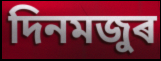
দিনমজুৰ